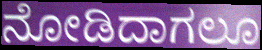
ನೋಡಿದಾಗಲೂ